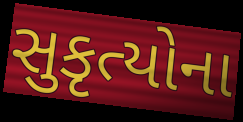
સુકૃત્યોના